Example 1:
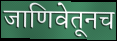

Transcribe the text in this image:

जाणिवेतूनच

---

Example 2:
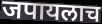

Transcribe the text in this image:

जपायलाच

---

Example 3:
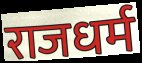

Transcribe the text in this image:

राजधर्म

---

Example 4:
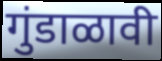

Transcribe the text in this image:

गुंडाळावी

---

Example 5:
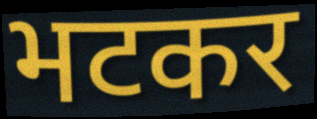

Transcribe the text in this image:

भटकर